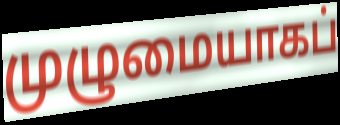
முழுமையாகப்